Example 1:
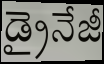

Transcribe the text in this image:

డ్రైనేజీ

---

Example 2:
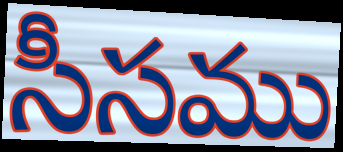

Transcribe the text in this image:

సీసము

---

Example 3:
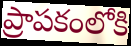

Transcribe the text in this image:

ప్రాపకంలోకి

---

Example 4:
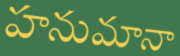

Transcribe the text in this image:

హనుమానా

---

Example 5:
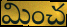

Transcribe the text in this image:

మించ